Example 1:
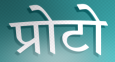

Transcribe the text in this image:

प्रोटो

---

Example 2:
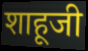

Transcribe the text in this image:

शाहूजी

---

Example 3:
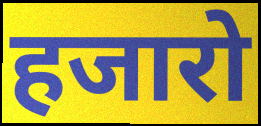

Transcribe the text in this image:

हजारो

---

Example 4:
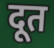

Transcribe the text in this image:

दूत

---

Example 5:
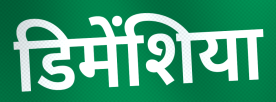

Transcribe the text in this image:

डिमेंशिया